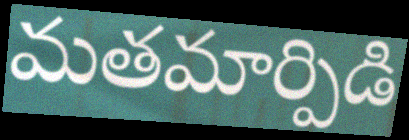
మతమార్పిడి